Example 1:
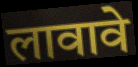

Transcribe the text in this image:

लावावे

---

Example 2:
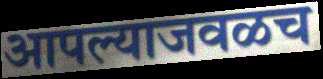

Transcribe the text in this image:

आपल्याजवळच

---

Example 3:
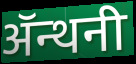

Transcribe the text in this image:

ॲन्थनी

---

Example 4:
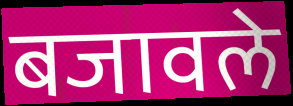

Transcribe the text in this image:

बजावले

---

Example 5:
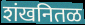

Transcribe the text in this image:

शंखनितळ